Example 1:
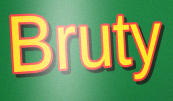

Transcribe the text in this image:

Bruty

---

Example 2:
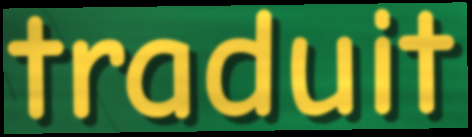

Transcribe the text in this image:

traduit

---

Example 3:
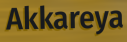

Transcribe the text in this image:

Akkareya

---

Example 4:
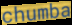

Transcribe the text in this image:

chumba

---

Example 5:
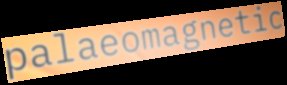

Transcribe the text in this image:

palaeomagnetic